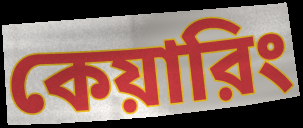
কেয়ারিং